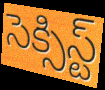
సెక్సిస్ట్